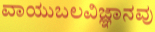
ವಾಯುಬಲವಿಜ್ಞಾನವು